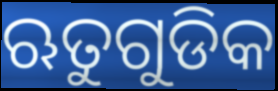
ଋତୁଗୁଡିକ